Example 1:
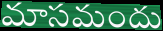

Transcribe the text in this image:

మాసమందు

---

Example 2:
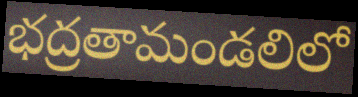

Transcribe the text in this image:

భద్రతామండలిలో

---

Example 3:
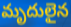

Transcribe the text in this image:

మృదులైన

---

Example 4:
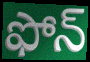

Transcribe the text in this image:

ఫోన్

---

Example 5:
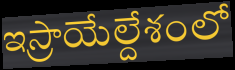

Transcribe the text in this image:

ఇస్రాయేల్దేశంలో